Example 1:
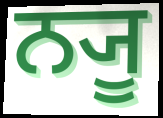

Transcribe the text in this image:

ਨ੍ਯੂ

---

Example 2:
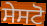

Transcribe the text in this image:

ਸੇਸਟੋ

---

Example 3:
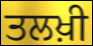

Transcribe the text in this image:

ਤਲਖ਼ੀ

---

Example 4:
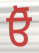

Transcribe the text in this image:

ਓੋ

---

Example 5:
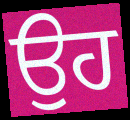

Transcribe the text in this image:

ਉਹ